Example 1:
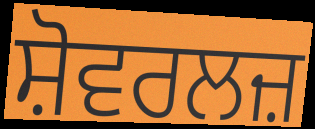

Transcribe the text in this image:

ਸ਼ੋਵਰਲਜ਼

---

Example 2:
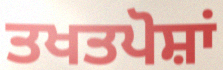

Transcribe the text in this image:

ਤਖਤਪੋਸ਼ਾਂ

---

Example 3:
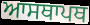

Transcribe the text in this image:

ਆਸਥਾਪਥ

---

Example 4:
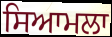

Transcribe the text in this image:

ਸਿਆਮਲਾ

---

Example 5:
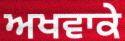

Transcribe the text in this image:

ਅਖਵਾਕੇ